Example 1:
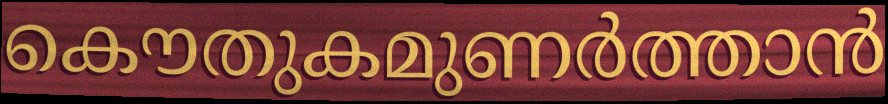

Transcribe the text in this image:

കൌതുകമുണർത്താൻ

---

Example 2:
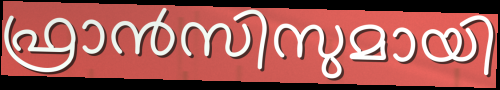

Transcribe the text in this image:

ഫ്രാൻസിസുമായി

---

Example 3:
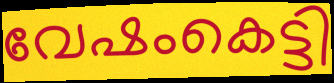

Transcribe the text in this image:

വേഷംകെട്ടി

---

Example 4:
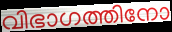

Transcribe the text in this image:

വിഭാഗത്തിനോ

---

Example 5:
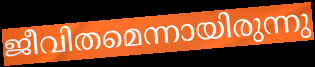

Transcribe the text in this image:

ജീവിതമെന്നായിരുന്നു